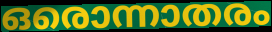
ഒരൊന്നാതരം